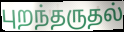
புறந்தருதல்